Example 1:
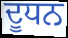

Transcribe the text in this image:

ਦੂਧਨ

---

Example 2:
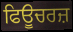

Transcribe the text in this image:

ਫਿਊਚਰਜ਼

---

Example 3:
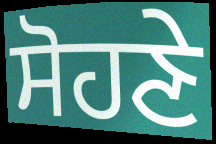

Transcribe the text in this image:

ਸੋਹਣੇ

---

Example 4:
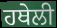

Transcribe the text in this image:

ਹਥੇਲੀ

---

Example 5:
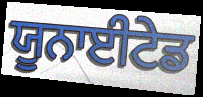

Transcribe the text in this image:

ਯੂਨਾਈਟੇਡ